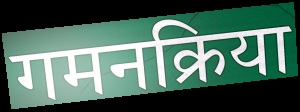
गमनक्रिया